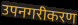
उपनगरीकरण